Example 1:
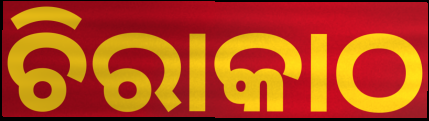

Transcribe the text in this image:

ଚିରାକାଠ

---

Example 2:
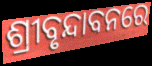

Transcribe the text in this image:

ଶ୍ରୀବୃନ୍ଦାବନରେ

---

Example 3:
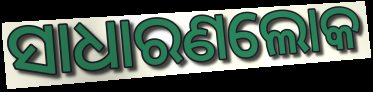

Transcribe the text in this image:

ସାଧାରଣଲୋକ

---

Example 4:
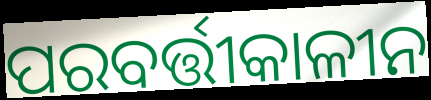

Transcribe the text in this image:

ପରବର୍ତ୍ତୀକାଳୀନ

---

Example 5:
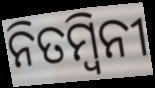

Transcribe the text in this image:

ନିତମ୍ବିନୀ